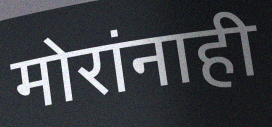
मोरांनाही